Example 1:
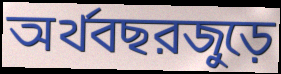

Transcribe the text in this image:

অর্থবছরজুড়ে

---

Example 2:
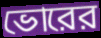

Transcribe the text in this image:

ভোরের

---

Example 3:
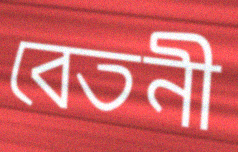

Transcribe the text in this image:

বেতনী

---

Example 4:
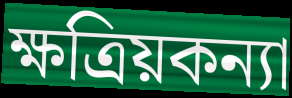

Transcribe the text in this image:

ক্ষত্রিয়কন্যা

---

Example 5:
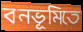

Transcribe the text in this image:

বনভূমিতে